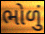
ભોળું